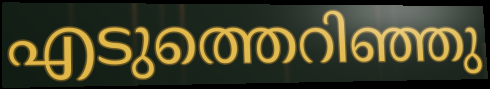
എടുത്തെറിഞ്ഞു